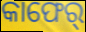
କାଫେର୍